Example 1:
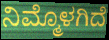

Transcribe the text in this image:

ನಿಮ್ಮೊಳಗಿದೆ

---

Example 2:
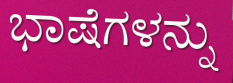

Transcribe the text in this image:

ಭಾಷೆಗಳನ್ನು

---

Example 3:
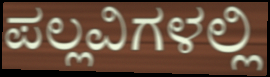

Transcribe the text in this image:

ಪಲ್ಲವಿಗಳಲ್ಲಿ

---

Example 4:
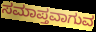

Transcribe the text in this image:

ಸಮಾಪ್ತವಾಗುವ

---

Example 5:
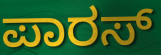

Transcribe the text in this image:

ಪಾರಸ್